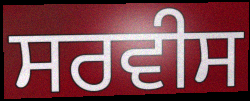
ਸਰਵੀਸ